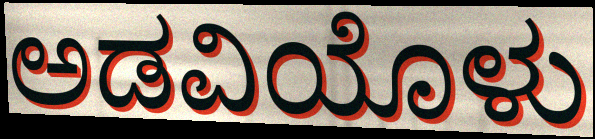
ಅಡವಿಯೊಳು